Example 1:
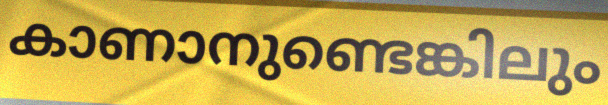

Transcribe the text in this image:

കാണാനുണ്ടെങ്കിലും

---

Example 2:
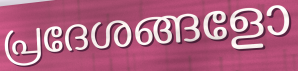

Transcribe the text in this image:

പ്രദേശങ്ങളോ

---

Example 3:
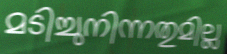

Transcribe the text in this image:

മടിച്ചുനിന്നതുമില്ല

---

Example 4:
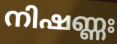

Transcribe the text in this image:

നിഷണ്ണഃ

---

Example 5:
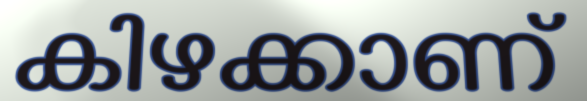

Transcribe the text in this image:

കിഴക്കാണ്